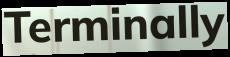
Terminally